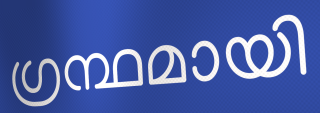
ഗ്രന്ഥമായി